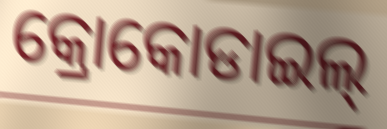
କ୍ରୋକୋଡାଇଲ୍